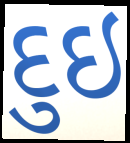
દુઇ